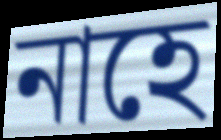
নাহে